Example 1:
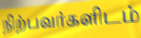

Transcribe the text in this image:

நிற்பவர்களிடம்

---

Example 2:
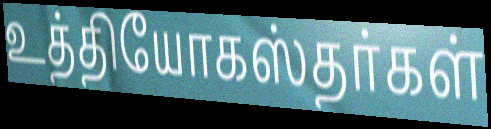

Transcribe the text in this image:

உத்தியோகஸ்தர்கள்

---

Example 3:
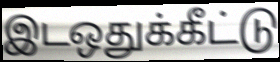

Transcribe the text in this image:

இடஒதுக்கீட்டு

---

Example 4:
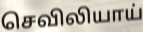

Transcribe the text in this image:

செவிலியாய்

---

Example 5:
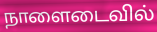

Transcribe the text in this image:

நாளைடைவில்